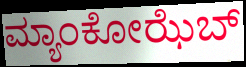
ಮ್ಯಾಂಕೋಝೆಬ್